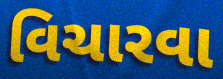
વિચારવા